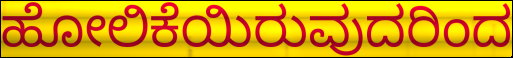
ಹೋಲಿಕೆಯಿರುವುದರಿಂದ